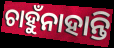
ଚାହୁଁନାହାନ୍ତି